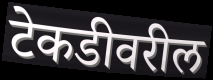
टेकडीवरील